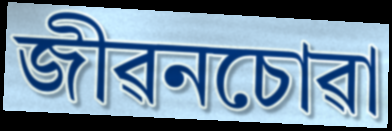
জীৱনচোৱা